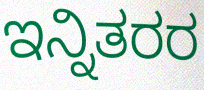
ಇನ್ನಿತರರ